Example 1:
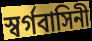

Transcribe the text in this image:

স্বর্গবাসিনী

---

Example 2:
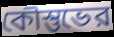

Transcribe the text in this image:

কৌস্তুভের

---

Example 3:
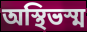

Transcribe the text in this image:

অস্থিভস্ম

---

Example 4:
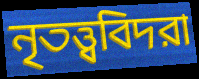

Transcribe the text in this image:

নৃতত্ত্ববিদরা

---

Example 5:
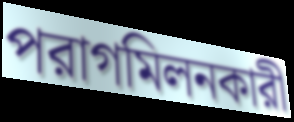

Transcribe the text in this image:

পরাগমিলনকারী